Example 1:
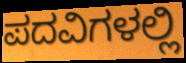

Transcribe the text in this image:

ಪದವಿಗಳಲ್ಲಿ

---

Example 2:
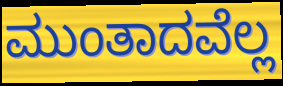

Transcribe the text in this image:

ಮುಂತಾದವೆಲ್ಲ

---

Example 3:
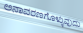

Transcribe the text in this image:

ಅನಾವರಣಗೊಳ್ಳುವುದು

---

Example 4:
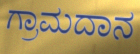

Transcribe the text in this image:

ಗ್ರಾಮದಾನ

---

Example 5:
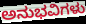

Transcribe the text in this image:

ಅನುಭವಿಗಳು